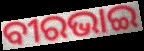
ବୀରଭାଇ